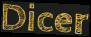
Dicer